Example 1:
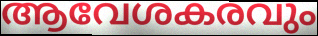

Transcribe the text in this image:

ആവേശകരവും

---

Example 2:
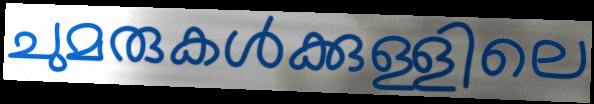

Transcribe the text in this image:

ചുമരുകൾക്കുള്ളിലെ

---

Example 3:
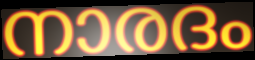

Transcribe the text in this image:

നാരദം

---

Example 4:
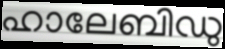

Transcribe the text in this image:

ഹാലേബിഡു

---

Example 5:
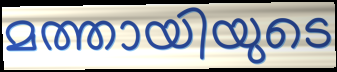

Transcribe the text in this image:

മത്തായിയുടെ